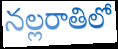
నల్లరాతిలో